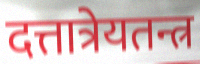
दत्तात्रेयतन्त्र